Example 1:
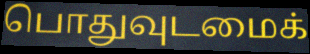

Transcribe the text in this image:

பொதுவுடமைக்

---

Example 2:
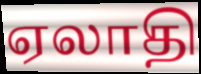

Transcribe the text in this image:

ஏலாதி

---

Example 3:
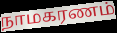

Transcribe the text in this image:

நாமகரணம்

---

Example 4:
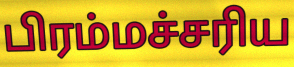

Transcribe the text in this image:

பிரம்மச்சரிய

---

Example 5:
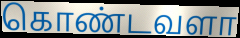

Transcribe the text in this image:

கொண்டவளா